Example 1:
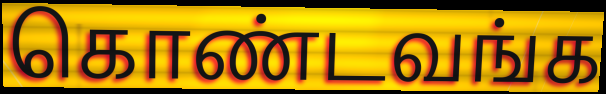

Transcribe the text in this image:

கொண்டவங்க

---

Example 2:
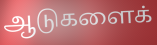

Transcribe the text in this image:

ஆடுகளைக்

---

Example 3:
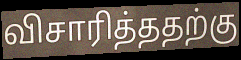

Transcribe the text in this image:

விசாரித்ததற்கு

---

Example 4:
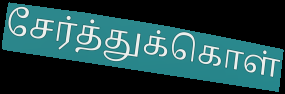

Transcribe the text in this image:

சேர்த்துக்கொள்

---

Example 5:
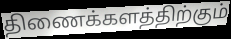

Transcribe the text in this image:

திணைக்களத்திற்கும்